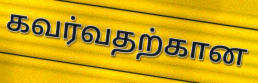
கவர்வதற்கான